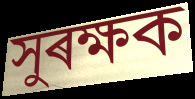
সুৰক্ষক